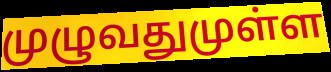
முழுவதுமுள்ள